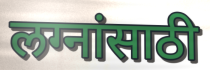
लग्नांसाठी